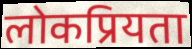
लोकप्रियता